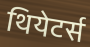
थियेटर्स